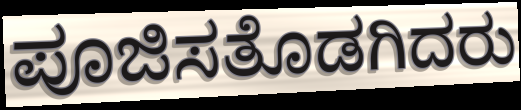
ಪೂಜಿಸತೊಡಗಿದರು